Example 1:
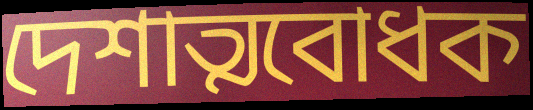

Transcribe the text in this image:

দেশাত্মবোধক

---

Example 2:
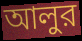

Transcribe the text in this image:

আলুর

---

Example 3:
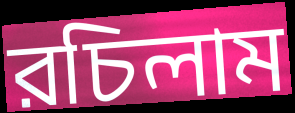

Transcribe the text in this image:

রচিলাম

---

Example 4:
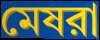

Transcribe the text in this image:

মেষরা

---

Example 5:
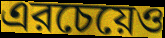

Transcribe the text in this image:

এরচেয়েও